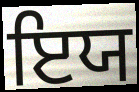
ਇਯ